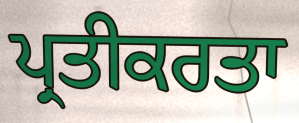
ਪ੍ਰਤੀਕਰਤਾ